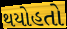
થયોહતો